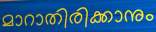
മാറാതിരിക്കാനും